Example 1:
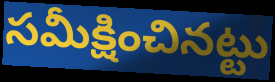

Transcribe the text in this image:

సమీక్షించినట్టు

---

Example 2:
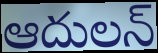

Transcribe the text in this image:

ఆదులన్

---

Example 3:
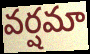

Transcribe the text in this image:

వర్షమా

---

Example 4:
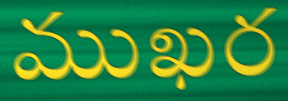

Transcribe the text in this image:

ముఖర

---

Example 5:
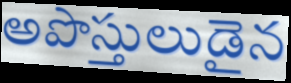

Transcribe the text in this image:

అపొస్తులుడైన